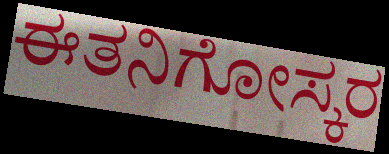
ಈತನಿಗೋಸ್ಕರ